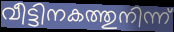
വീട്ടിനകത്തുനിന്ന്